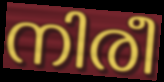
നിരീ